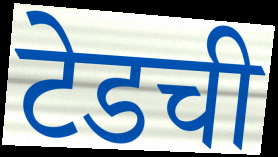
टेडची